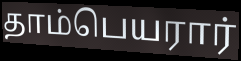
தாம்பெயரார்